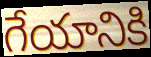
గేయానికి